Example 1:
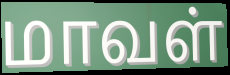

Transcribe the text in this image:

மாவள்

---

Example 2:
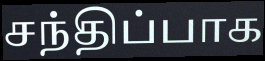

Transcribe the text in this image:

சந்திப்பாக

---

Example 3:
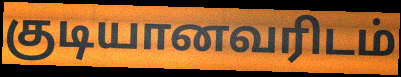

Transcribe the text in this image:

குடியானவரிடம்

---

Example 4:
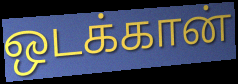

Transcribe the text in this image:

ஒடக்கான்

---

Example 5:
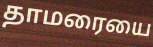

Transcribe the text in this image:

தாமரையை